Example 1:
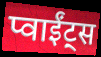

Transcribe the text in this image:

प्वाईंट्स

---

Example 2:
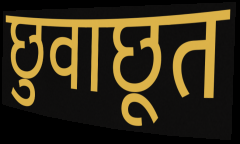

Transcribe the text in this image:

छुवाछूत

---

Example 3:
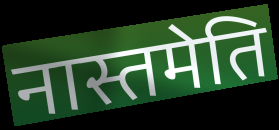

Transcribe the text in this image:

नास्तमेति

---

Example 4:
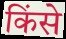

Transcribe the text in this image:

किंसे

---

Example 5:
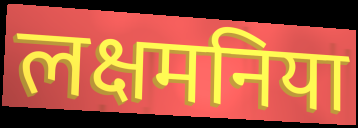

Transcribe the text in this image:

लक्षमनिया